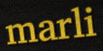
marli